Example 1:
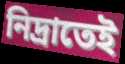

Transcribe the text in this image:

নিদ্রাতেই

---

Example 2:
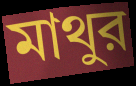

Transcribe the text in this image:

মাথুর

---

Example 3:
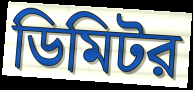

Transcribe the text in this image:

ডিমিটর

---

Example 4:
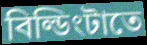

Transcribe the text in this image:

বিল্ডিংটাতে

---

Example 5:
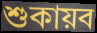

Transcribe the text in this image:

শুকায়ব